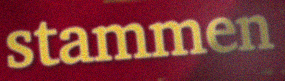
stammen